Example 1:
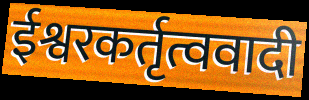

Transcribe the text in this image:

ईश्वरकर्तृत्ववादी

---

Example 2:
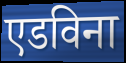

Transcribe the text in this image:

एडविना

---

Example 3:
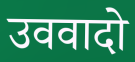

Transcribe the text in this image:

उववादो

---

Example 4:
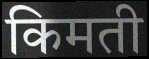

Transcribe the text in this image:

किमती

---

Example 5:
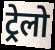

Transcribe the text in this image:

ट्रेलो